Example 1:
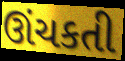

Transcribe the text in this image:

ઊંચકતી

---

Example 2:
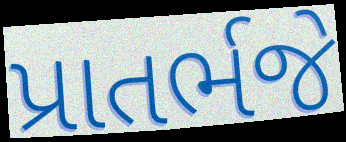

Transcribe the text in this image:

પ્રાતર્ભજે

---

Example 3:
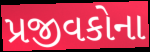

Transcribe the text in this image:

પ્રજીવકોના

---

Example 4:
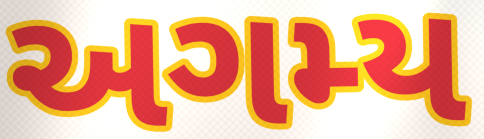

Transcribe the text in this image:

અગમ્ય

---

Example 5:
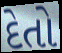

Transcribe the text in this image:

દેતો